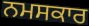
ਨਮਸਕਾਰ